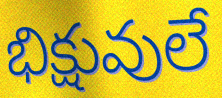
భిక్షువులే